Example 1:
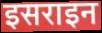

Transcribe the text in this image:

इसराइन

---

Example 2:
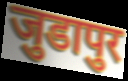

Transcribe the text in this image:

जुडापुर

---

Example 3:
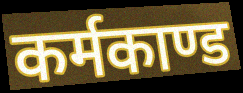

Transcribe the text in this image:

कर्मकाण्ड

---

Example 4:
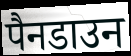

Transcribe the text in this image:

पैनडाउन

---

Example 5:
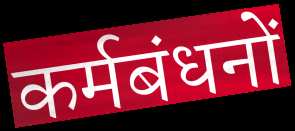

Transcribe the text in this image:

कर्मबंधनों